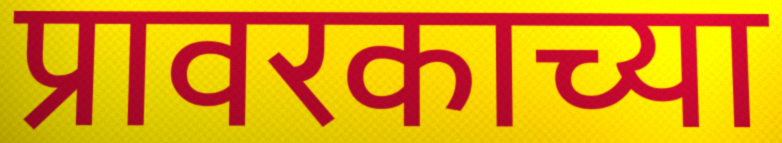
प्रावरकाच्या